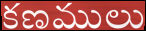
కణములు